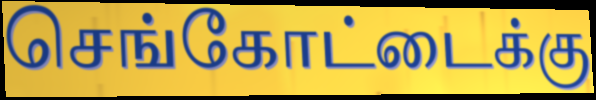
செங்கோட்டைக்கு